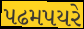
પઢમપયરે